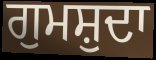
ਗੁਮਸ਼ੁਦਾ